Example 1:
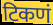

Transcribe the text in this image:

टिकणं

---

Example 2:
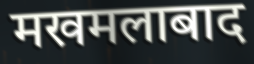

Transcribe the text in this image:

मखमलाबाद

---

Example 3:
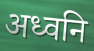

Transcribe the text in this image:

अध्वनि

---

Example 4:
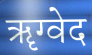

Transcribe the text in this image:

ॠग्वेद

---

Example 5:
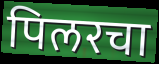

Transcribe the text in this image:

पिलरचा